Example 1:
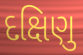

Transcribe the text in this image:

દક્ષિણુ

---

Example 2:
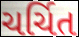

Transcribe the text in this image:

ચર્ચિત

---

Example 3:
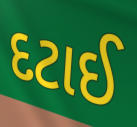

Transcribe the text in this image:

દટાઈ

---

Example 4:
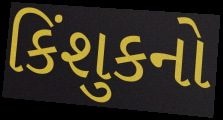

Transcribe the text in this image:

કિંશુકનો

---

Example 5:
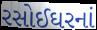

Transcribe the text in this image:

રસોઈઘરનાં